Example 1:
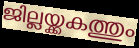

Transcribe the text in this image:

ജില്ലയ്ക്കകത്തും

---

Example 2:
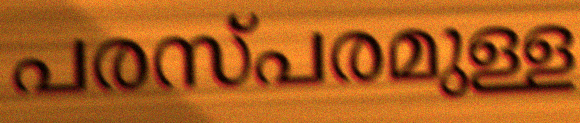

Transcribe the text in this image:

പരസ്പരമുള്ള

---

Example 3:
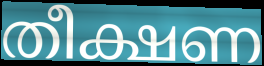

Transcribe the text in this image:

തീക്ഷണ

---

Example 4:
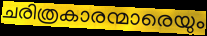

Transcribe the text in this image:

ചരിത്രകാരന്മാരെയും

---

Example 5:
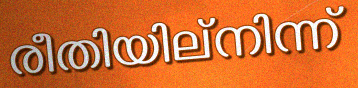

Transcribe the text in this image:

രീതിയില്നിന്ന്